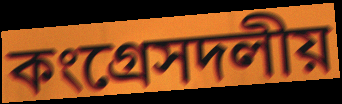
কংগ্রেসদলীয়